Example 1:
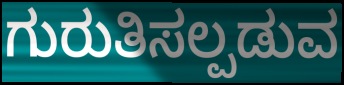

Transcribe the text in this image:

ಗುರುತಿಸಲ್ಪಡುವ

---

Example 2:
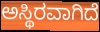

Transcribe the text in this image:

ಅಸ್ಥಿರವಾಗಿದೆ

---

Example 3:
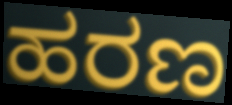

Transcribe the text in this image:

ಹರಣ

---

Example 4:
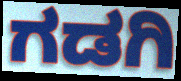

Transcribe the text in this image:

ಗಡಗಿ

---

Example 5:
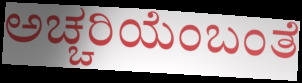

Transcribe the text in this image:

ಅಚ್ಚರಿಯೆಂಬಂತೆ